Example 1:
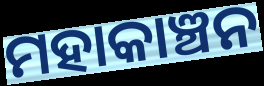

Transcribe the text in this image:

ମହାକାଞ୍ଚନ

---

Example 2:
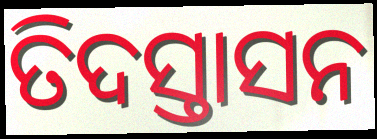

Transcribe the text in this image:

ତିଦସ୍ତାସନ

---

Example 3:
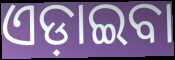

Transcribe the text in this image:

ଏଡ଼ାଇବା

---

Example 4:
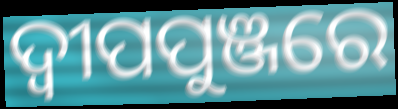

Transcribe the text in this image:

ଦ୍ବୀପପୁଞ୍ଜରେ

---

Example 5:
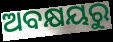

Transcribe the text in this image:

ଅବକ୍ଷୟରୁ